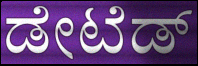
ಡೇಟೆಡ್